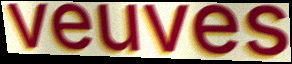
veuves